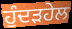
ਹੁੰਦੜਹੇਲ